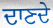
ਦਾਣਦੇ